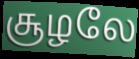
சூழலே